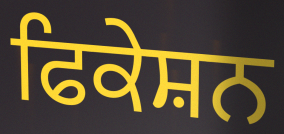
ਫਿਕੇਸ਼ਨ